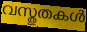
വസ്തുതകൾ